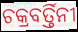
ଚକ୍ରବର୍ତ୍ତିନୀ